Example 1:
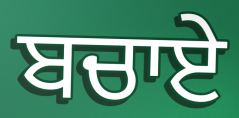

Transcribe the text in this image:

ਬਚਾਏ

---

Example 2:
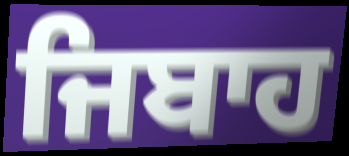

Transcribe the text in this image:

ਜਿਬਾਹ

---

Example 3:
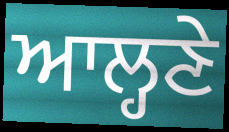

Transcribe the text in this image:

ਆਲ੍ਹਣੇ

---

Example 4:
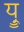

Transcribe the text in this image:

ਧ੍ਰੂ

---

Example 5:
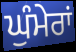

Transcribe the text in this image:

ਘੁੰਮੇਰਾਂ